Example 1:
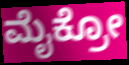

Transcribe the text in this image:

ಮೈಕ್ರೋ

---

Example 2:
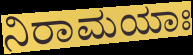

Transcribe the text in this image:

ನಿರಾಮಯಾಃ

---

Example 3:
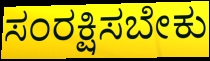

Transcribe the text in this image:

ಸಂರಕ್ಷಿಸಬೇಕು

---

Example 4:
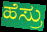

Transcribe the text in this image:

ಹೆಸ್ರು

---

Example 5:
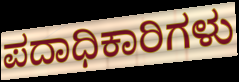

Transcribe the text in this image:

ಪದಾಧಿಕಾರಿಗಳು